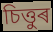
চিত্তুৰ